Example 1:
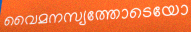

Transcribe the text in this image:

വൈമനസ്യത്തോടെയോ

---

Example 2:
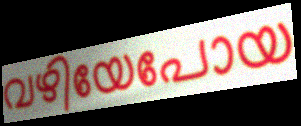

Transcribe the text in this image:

വഴിയേപോയ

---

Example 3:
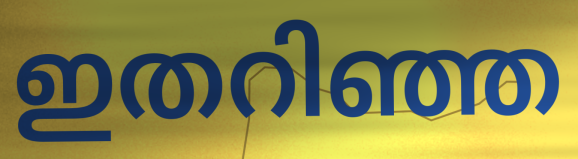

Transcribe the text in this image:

ഇതറിഞ്ഞ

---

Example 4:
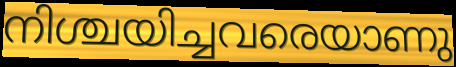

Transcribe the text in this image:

നിശ്ചയിച്ചവരെയാണു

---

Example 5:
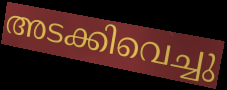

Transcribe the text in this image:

അടക്കിവെച്ചു